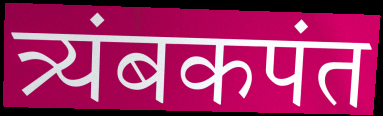
त्र्यंबकपंत